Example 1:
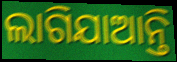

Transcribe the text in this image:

ଲାଗିଯାଆନ୍ତି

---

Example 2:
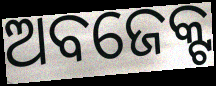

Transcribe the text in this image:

ଅବଜେକ୍ଟ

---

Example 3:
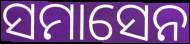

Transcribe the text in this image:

ସମାସେନ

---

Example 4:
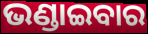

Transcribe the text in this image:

ଭଣ୍ଡାଇବାର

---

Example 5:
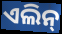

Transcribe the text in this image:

ଏଲିନ୍